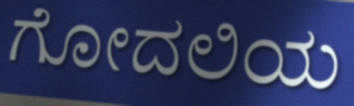
ಗೋದಲಿಯ